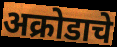
अक्रोडाचे